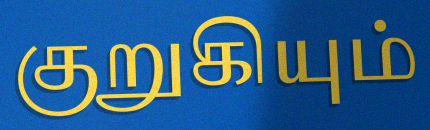
குறுகியும்